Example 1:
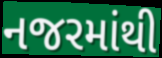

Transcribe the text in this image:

નજરમાંથી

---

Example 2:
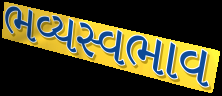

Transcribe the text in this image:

ભવ્યસ્વભાવ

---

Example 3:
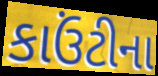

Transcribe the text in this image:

કાઉંટીના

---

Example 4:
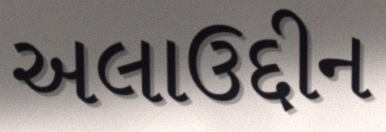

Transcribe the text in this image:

અલાઉદ્દીન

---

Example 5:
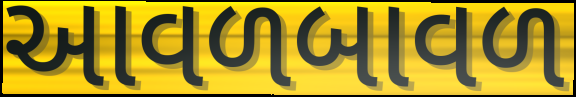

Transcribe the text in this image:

આવળબાવળ